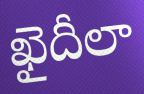
ఖైదీలా